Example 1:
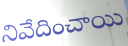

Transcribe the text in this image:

నివేదించాయి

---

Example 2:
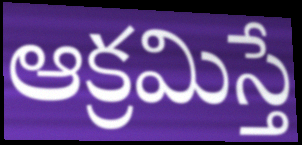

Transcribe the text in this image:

ఆక్రమిస్తే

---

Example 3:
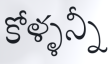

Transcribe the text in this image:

కోళ్ళన్నీ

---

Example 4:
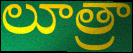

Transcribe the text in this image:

లూత్రా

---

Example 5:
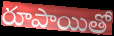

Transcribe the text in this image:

రూపాయితో